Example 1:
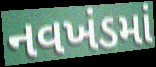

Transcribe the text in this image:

નવખંડમાં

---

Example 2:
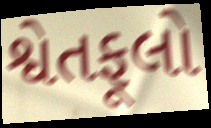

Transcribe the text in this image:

શ્વેતફૂલો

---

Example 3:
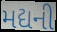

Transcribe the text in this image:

મદ્યની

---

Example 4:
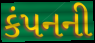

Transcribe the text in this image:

કંપનની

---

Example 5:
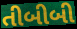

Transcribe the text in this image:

તીબીબી